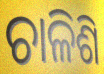
ଚାଳିଶି